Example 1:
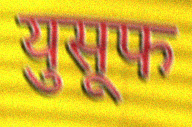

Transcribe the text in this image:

युसूफ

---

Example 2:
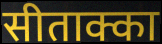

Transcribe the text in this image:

सीताक्का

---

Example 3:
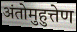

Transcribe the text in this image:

अंतोमुहुत्तेण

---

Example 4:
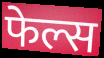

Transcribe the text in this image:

फेल्स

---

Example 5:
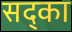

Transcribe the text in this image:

सद्का